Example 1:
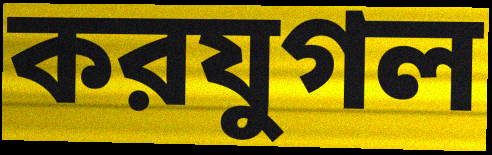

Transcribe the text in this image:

করযুগল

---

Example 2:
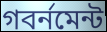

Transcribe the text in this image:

গবর্নমেন্ট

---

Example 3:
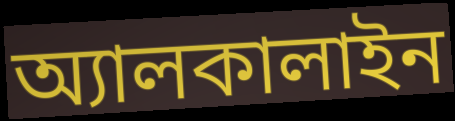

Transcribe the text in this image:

অ্যালকালাইন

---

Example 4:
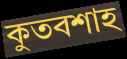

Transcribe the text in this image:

কুতবশাহ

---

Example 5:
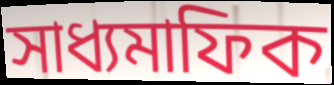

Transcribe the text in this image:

সাধ্যমাফিক